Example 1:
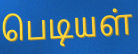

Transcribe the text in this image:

பெடியள்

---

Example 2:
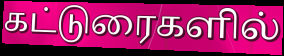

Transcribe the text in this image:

கட்டுரைகளில்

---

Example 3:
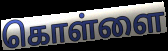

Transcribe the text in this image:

கொள்ளை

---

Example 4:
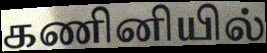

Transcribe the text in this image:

கணினியில்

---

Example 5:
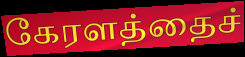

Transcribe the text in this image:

கேரளத்தைச்